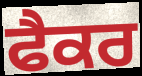
ਫੈਕਰ